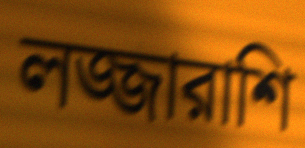
লজ্জারাশি